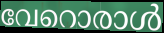
വേറൊരാൾ